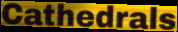
Cathedrals